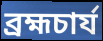
ব্রহ্মচার্য